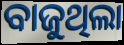
ବାଜୁଥିଲା